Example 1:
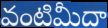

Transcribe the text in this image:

వంటిమీదా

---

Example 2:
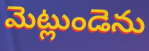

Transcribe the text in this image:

మెట్లుండెను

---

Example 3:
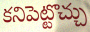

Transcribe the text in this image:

కనిపెట్టొచ్చు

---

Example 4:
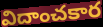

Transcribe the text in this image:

విదాంచకార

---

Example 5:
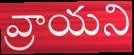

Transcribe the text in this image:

వ్రాయని